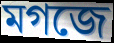
মগজে